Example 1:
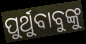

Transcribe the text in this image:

ପୁର୍ଥୁବାବୁଙ୍କୁ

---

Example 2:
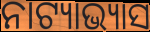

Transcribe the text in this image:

ନାଟ୍ୟାଭ୍ୟାସ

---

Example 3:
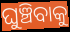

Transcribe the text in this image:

ଘୁଞ୍ଚିବାକୁ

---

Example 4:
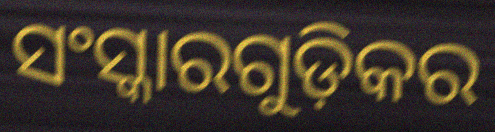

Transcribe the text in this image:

ସଂସ୍କାରଗୁଡ଼ିକର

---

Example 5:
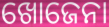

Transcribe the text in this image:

ଖୋଜେନା